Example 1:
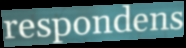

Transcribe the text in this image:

respondens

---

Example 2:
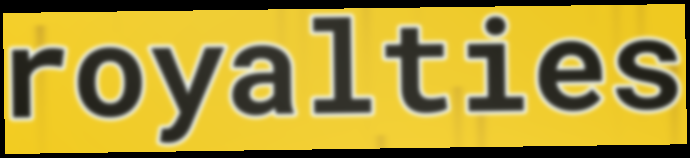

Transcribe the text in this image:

royalties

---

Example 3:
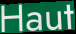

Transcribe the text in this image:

Haut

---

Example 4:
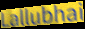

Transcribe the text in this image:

Lallubhai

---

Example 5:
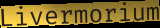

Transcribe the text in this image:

Livermorium